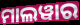
ମାଲୱାର